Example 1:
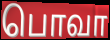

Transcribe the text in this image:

பொவா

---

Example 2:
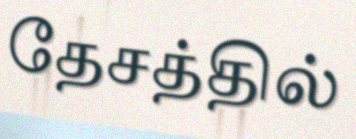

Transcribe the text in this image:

தேசத்தில்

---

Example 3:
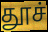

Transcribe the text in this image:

தூச்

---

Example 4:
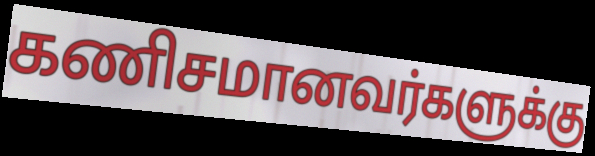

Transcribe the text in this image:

கணிசமானவர்களுக்கு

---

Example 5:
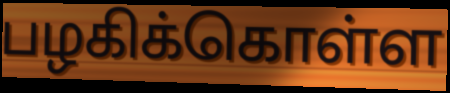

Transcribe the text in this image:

பழகிக்கொள்ள